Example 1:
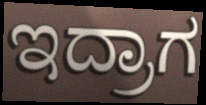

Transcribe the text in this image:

ಇದ್ರಾಗ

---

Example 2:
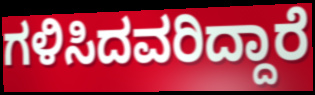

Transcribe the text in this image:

ಗಳಿಸಿದವರಿದ್ದಾರೆ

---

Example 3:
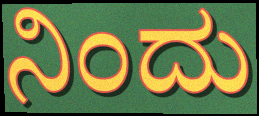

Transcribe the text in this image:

ನಿಂದು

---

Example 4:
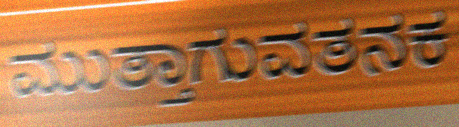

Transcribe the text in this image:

ಮುತ್ತಾಗುವತನಕ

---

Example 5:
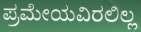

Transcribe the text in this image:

ಪ್ರಮೇಯವಿರಲಿಲ್ಲ